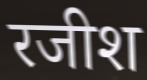
रजीश